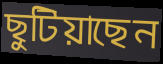
ছুটিয়াছেন